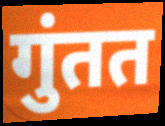
गुंतत